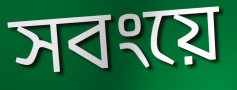
সবংয়ে